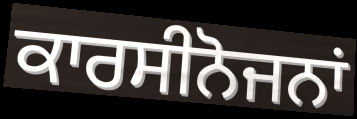
ਕਾਰਸੀਨੋਜਨਾਂ